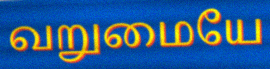
வறுமையே